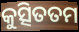
କୁତ୍ସିତତମ